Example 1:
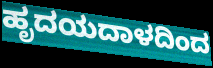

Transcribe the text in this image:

ಹೃದಯದಾಳದಿಂದ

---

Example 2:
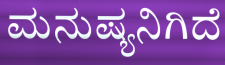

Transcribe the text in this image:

ಮನುಷ್ಯನಿಗಿದೆ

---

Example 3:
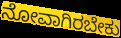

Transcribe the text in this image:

ನೋವಾಗಿರಬೇಕು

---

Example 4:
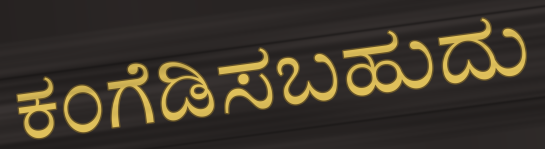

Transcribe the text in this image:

ಕಂಗೆಡಿಸಬಹುದು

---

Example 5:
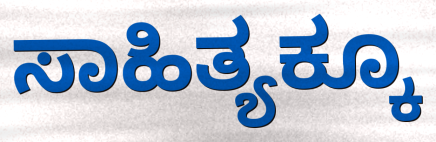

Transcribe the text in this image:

ಸಾಹಿತ್ಯಕ್ಕೂ